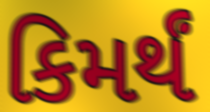
કિમર્થં